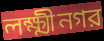
লক্ষ্মীনগর